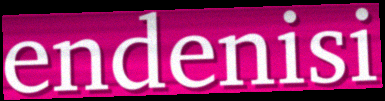
endenisi